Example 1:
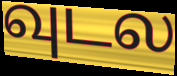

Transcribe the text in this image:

வுடல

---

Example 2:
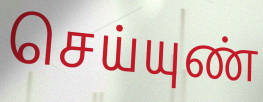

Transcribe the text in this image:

செய்யுண்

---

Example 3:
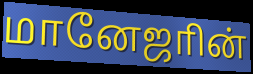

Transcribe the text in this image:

மானேஜரின்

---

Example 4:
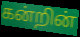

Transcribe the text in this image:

கன்றின்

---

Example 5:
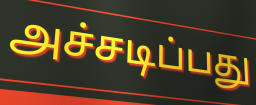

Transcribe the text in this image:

அச்சடிப்பது